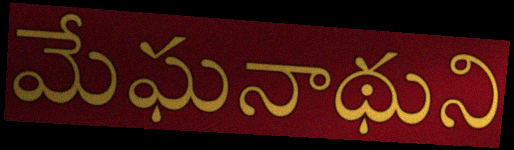
మేఘనాథుని